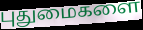
புதுமைகளை